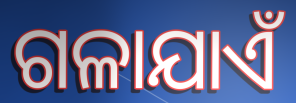
ଗଳାଯାଏଁ